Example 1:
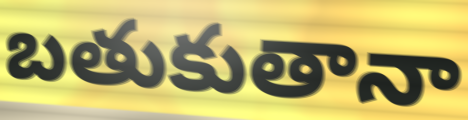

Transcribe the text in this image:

బతుకుతానా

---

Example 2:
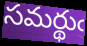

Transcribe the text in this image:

సమర్థుఁ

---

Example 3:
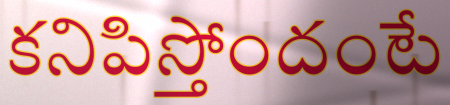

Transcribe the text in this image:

కనిపిస్తోందంటే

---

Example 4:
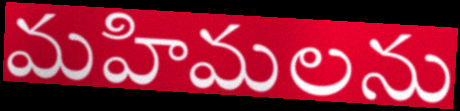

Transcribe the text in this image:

మహిమలను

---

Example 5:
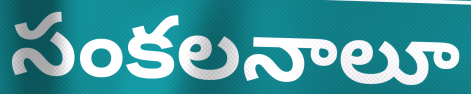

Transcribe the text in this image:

సంకలనాలూ